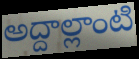
అద్దాల్లాంటి